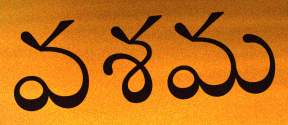
వశమ